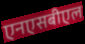
एनएसबीएल